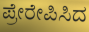
ಪ್ರೇರೇಪಿಸಿದ